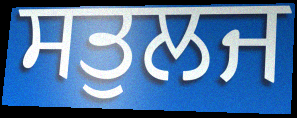
ਸਤੁਲਜ